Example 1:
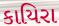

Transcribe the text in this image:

કાયિરા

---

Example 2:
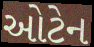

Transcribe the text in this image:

ઓટેન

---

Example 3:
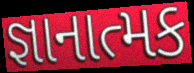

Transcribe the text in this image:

જ્ઞાનાત્મક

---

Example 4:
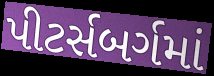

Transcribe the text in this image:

પીટર્સબર્ગમાં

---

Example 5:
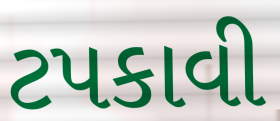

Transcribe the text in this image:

ટપકાવી